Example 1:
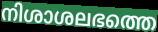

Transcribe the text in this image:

നിശാശലഭത്തെ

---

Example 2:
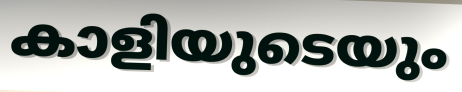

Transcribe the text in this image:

കാളിയുടെയും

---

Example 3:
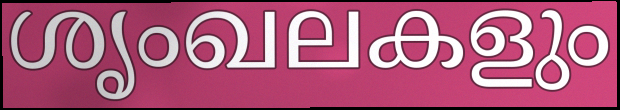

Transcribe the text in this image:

ശൃംഖലകളും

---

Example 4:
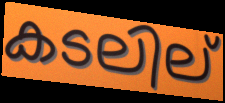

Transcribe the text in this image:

കടലില്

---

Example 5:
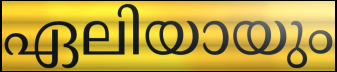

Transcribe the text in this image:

ഏലിയായും